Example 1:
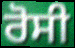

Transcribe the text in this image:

ਰੋਸੀ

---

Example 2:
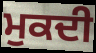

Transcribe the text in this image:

ਮੁਕਦੀ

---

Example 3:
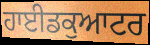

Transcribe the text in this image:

ਹਾਈਡਕੁਆਟਰ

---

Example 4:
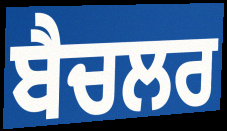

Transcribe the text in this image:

ਬੈਚਲਰ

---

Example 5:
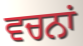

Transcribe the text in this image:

ਵਚਨਾਂ